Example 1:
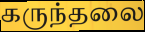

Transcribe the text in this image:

கருந்தலை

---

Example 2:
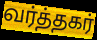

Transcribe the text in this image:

வர்த்தகர்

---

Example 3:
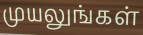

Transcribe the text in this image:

முயலுங்கள்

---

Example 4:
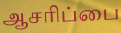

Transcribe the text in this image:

ஆசரிப்பை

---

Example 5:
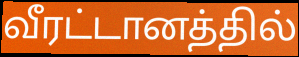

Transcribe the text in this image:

வீரட்டானத்தில்